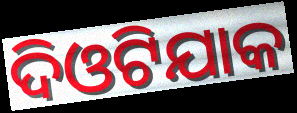
ଦିଓଟିଯାକ